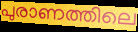
പുരാണത്തിലെ